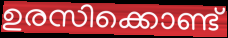
ഉരസിക്കൊണ്ട്